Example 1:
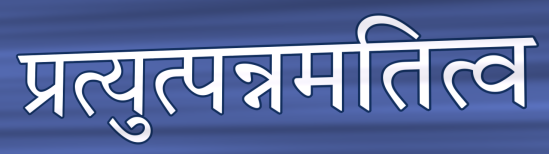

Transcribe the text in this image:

प्रत्युत्पन्नमतित्व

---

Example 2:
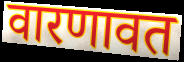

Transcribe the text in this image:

वारणावत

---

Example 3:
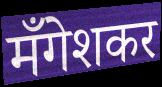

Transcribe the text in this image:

मँगेशकर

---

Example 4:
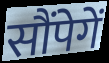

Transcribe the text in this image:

सौंपेगें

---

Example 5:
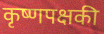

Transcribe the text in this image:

कृष्णपक्षकी